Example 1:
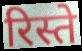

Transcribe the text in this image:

रिस्ते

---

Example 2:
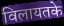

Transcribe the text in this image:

विलायतके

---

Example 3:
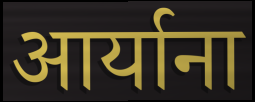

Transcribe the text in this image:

आर्याना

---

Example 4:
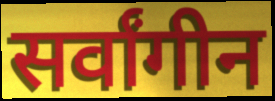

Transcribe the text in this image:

सर्वांगीन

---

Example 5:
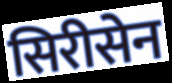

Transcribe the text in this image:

सिरीसेन